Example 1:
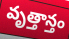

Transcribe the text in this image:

వృత్తాన్తం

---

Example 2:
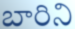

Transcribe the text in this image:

బారిని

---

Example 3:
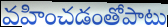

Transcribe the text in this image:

వహించడంతోపాటు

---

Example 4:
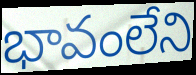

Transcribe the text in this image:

భావంలేని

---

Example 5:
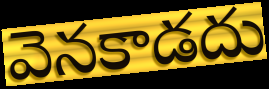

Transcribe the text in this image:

వెనకాడదు